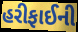
હરીફાઈની